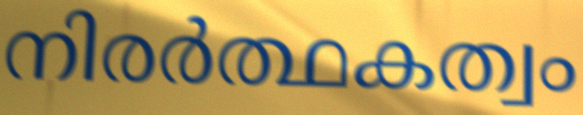
നിരർത്ഥകത്വം